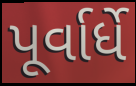
પૂર્વાર્ધે